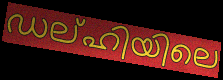
ഡല്ഹിയിലെ